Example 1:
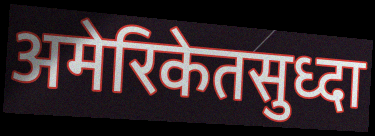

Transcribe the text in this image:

अमेरिकेतसुध्दा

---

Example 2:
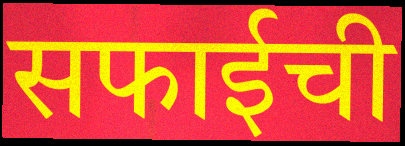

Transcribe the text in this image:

सफाईची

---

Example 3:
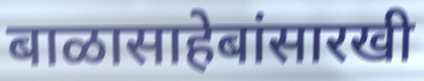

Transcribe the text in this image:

बाळासाहेबांसारखी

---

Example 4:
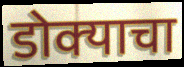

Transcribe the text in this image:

डोक्याचा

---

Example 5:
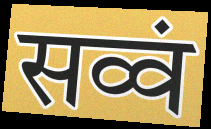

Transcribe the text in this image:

सव्वं